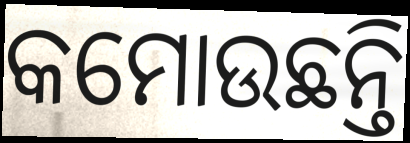
କମୋଉଛନ୍ତି